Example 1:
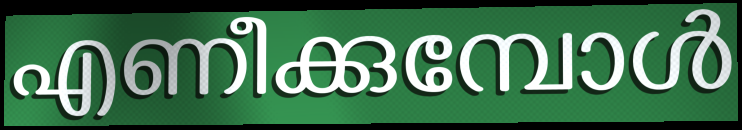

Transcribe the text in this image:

എണീക്കുമ്പോൾ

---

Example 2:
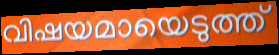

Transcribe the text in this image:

വിഷയമായെടുത്ത്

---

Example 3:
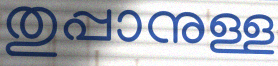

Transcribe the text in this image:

തുപ്പാനുള്ള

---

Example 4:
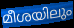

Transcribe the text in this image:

മീശയിലും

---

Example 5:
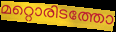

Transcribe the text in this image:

മറ്റൊരിടത്തോ